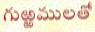
గుఱ్ఱములతో